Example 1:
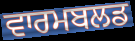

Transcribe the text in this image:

ਵਾਰਮਬਲਡ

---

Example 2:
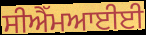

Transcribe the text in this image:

ਸੀਐੱਮਆਈਈ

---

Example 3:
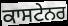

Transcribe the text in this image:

ਕਾਸਟੇਨਰ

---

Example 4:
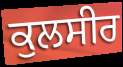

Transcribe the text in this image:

ਕੁਲਸੀਰ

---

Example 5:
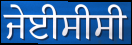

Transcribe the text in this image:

ਜੇਈਸੀਸੀ